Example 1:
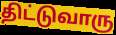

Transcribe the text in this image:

திட்டுவாரு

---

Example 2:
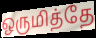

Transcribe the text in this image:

ஒருமித்தே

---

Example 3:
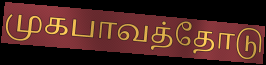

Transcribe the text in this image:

முகபாவத்தோடு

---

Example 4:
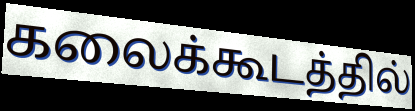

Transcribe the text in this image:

கலைக்கூடத்தில்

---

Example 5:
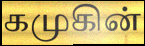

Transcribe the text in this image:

கமுகின்